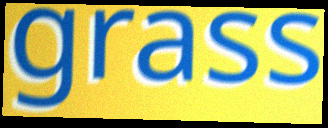
grass